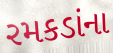
રમકડાંના